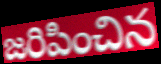
జరిపించిన